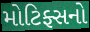
મોટિફ્સનો